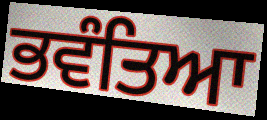
ਭਵੰਤਿਆ